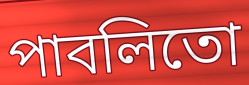
পাবলিতো